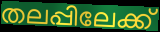
തലപ്പിലേക്ക്